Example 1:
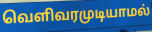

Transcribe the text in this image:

வெளிவரமுடியாமல்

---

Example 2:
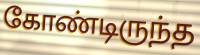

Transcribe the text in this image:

கோண்டிருந்த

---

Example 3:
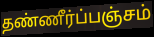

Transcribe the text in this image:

தண்ணீர்ப்பஞ்சம்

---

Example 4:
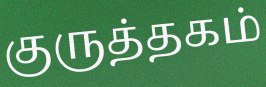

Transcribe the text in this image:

குருத்தகம்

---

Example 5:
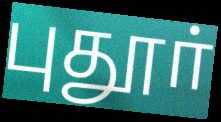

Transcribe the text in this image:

புதூர்